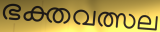
ഭക്തവത്സല